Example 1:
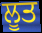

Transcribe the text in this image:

ਲੂਤ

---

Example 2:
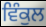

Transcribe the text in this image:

ਵਿੰਕੁਲ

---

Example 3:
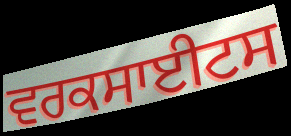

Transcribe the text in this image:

ਵਰਕਸਾਈਟਸ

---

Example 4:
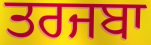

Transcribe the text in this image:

ਤਰਜਬਾ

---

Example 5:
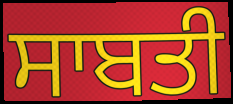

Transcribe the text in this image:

ਸਾਬਤੀ